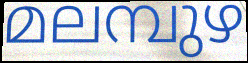
മലമ്പുഴ